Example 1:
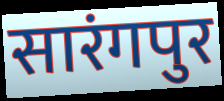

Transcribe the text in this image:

सारंगपुर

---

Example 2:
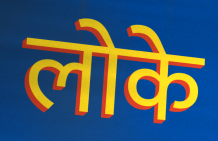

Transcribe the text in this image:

लोके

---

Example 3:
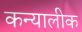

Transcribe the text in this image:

कन्यालीक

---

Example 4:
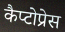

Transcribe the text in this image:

कैप्टोप्रेस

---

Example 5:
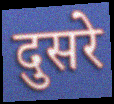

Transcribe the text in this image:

दुसरे